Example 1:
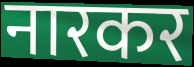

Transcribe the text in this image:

नारकर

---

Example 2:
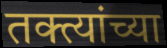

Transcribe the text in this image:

तक्त्यांच्या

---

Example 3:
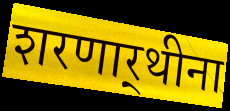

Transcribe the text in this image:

शरणार्थीना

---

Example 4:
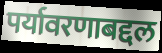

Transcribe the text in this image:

पर्यावरणाबद्दल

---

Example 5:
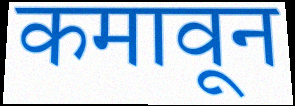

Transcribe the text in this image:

कमावून